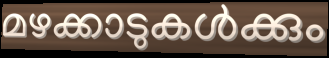
മഴക്കാടുകൾക്കും